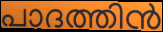
പാദത്തിൻ